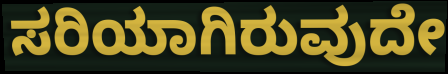
ಸರಿಯಾಗಿರುವುದೇ